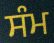
ਸੰਮ